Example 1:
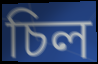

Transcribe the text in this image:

চিল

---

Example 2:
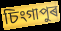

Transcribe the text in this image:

চিংগাপুৰ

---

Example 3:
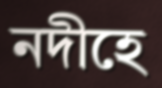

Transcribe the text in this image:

নদীহে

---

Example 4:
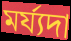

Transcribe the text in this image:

মৰ্য্যদা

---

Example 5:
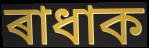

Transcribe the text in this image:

ৰাধাক